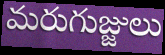
మరుగుజ్జులు